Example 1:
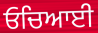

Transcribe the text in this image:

ਓਚਿਆਈ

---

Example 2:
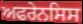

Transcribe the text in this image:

ਅਫਰੇਨਸਿਸ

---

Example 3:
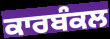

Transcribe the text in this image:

ਕਾਰਬੰਕਲ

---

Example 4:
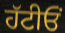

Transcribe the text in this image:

ਹੱਟੀਓਂ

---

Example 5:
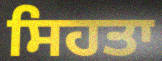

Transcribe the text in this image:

ਸਿਹਤਾ